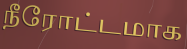
நீரோட்டமாக